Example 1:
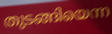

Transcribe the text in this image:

തുടങ്ങിയെന്ന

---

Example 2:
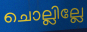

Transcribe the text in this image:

ചൊല്ലില്ലേ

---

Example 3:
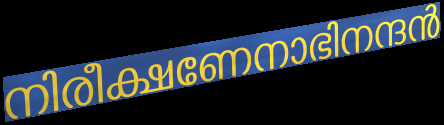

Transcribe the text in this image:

നിരീക്ഷണേനാഭിനന്ദൻ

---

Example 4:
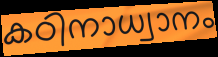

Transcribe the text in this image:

കഠിനാധ്വാനം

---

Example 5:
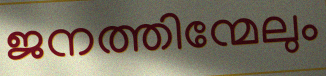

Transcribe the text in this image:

ജനത്തിന്മേലും